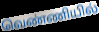
வெண்ணியில்